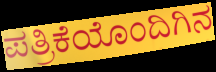
ಪತ್ರಿಕೆಯೊಂದಿಗಿನ